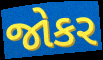
જોકર